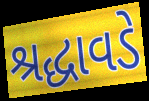
શ્રદ્ધાવડે